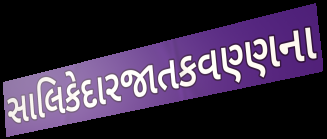
સાલિકેદારજાતકવણ્ણના